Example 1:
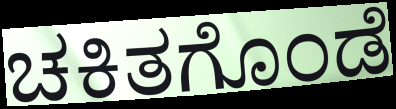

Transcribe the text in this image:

ಚಕಿತಗೊಂಡೆ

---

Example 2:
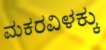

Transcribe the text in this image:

ಮಕರವಿಳಕ್ಕು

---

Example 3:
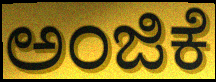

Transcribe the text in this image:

ಅಂಜಿಕೆ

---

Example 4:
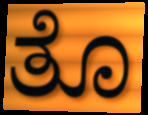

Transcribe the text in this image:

ತೊ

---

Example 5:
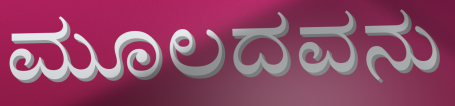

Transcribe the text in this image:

ಮೂಲದವನು